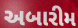
અબારીમ